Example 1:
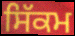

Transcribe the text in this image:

ਸਿੱਕਮ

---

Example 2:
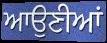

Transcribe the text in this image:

ਆਉਣੀਆਂ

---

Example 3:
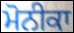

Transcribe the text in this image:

ਮੋਨੀਕਾ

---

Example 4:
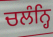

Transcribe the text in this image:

ਚਲੰਨ੍ਹ੍ਹਿ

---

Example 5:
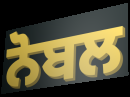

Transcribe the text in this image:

ਨੋਬਲ